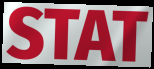
STAT